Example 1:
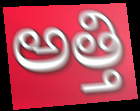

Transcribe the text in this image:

అత్తి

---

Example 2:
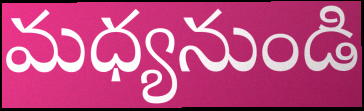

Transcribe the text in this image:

మధ్యనుండి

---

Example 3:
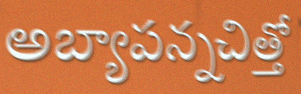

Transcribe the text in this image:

అబ్యాపన్నచిత్తో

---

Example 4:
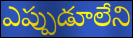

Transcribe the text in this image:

ఎప్పుడూలేని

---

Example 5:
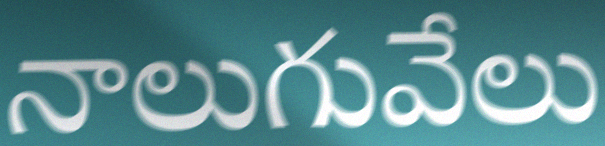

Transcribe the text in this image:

నాలుగువేలు